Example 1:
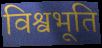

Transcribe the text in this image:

विश्वभूति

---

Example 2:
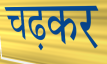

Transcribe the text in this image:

चढ़कर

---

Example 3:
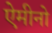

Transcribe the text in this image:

ऐमीनो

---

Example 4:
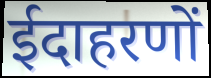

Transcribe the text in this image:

ईदाहरणों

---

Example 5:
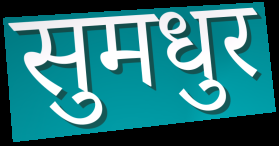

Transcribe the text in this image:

सुमधुर